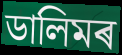
ডালিমৰ